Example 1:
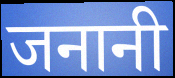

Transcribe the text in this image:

जनानी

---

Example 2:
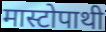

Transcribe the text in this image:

मास्टोपाथी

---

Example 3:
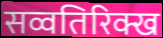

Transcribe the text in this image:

सव्वतिरिक्ख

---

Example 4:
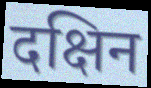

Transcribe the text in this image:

दक्षिन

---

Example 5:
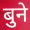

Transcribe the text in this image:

बुने